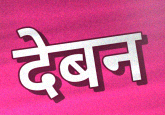
देबन